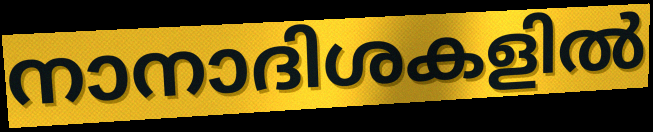
നാനാദിശകളിൽ